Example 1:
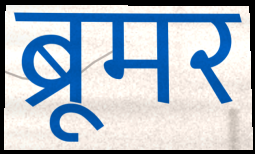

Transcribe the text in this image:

ब्रूमर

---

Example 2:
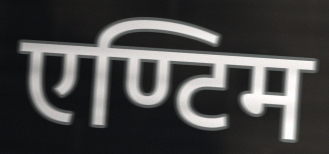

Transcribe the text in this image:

एण्टिम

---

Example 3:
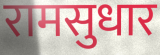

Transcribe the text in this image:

रामसुधार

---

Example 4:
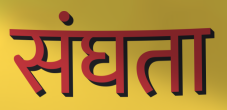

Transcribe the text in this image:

संघता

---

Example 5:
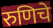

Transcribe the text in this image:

रुणिचे